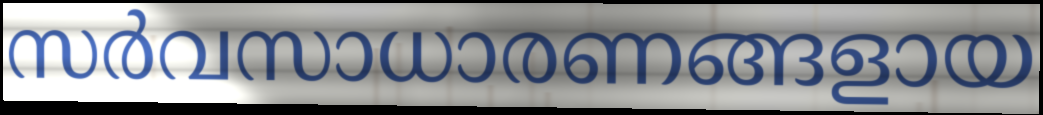
സർവസാധാരണങ്ങളായ